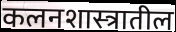
कलनशास्त्रातील